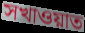
সখাওয়াত